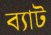
ব্যাট